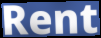
Rent